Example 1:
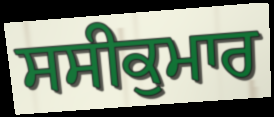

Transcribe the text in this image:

ਸਸੀਕੁਮਾਰ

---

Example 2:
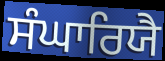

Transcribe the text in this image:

ਸੰਘਾਰਿਯੈ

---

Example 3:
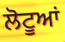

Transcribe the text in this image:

ਲੋਟੂਆਂ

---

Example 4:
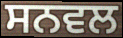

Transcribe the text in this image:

ਸਨਵਲ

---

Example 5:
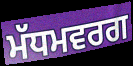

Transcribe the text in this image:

ਮੱਧਮਵਰਗ